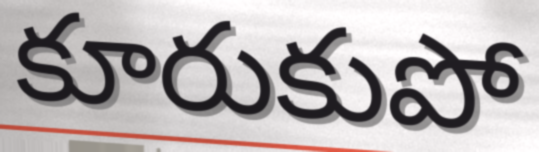
కూరుకుపో